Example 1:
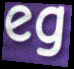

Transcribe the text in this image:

eg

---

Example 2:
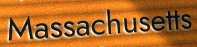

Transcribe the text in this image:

Massachusetts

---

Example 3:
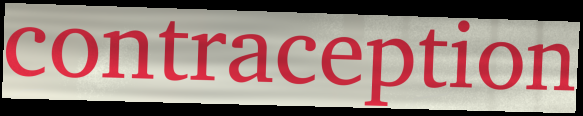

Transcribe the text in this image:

contraception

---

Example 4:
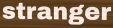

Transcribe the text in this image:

stranger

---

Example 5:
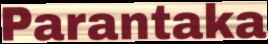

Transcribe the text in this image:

Parantaka